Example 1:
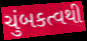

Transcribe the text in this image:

ચુંબકત્વથી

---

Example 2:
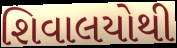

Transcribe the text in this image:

શિવાલયોથી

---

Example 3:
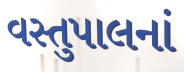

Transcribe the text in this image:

વસ્તુપાલનાં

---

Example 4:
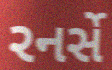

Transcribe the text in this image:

રનર્સે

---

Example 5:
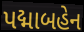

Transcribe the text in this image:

પદ્માબહેન